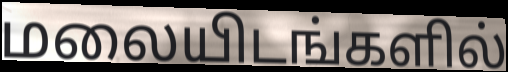
மலையிடங்களில்